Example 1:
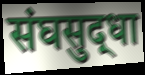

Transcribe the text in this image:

संघसुद्धा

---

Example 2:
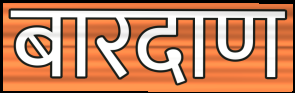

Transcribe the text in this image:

बारदाण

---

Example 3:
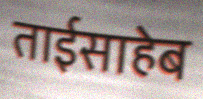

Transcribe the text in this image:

ताईसाहेब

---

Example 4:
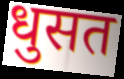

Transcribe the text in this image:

धुसत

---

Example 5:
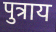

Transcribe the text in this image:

पुत्राय